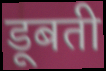
डूबती